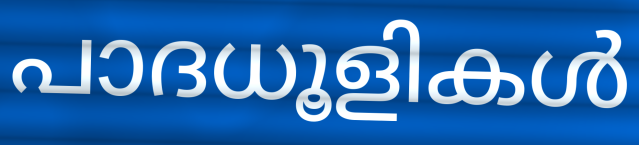
പാദധൂളികൾ